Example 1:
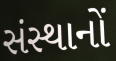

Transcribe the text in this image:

સંસ્થાનોં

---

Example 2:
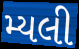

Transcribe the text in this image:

મ્યલી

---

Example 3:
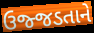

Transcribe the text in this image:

ઉજ્જડતાને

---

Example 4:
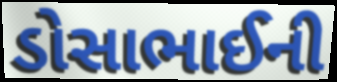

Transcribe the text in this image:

ડોસાભાઈની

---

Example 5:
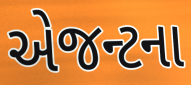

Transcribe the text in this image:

એજન્ટના